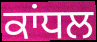
ਕਾਂਧਲ